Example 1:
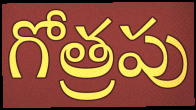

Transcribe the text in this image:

గోత్రపు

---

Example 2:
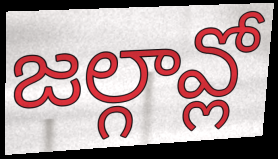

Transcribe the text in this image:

జల్గావ్లో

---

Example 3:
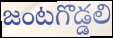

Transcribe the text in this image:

జంటగొడ్డలి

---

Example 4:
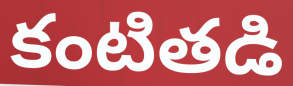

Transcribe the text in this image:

కంటితడి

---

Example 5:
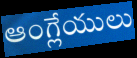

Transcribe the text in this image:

ఆంగ్లేయులు